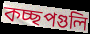
কচ্ছপগুলি